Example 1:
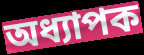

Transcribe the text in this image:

অধ্যাপক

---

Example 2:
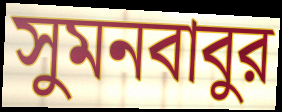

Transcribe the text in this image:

সুমনবাবুর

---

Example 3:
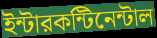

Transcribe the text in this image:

ইন্টারকন্টিনেন্টাল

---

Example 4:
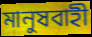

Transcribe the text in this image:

মানুষবাহী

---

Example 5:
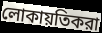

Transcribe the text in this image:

লোকায়তিকরা